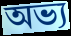
অভ্য